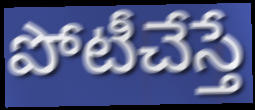
పోటీచేస్తే